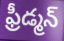
ఫ్రీడ్మన్